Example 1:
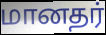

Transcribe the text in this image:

மானதர்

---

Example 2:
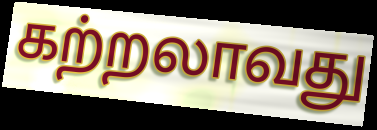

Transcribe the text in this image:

கற்றலாவது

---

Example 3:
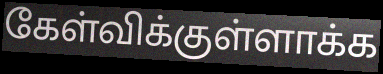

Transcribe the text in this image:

கேள்விக்குள்ளாக்க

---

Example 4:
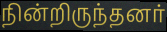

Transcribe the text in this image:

நின்றிருந்தனர்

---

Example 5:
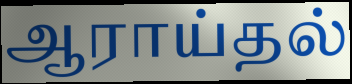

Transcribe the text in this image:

ஆராய்தல்